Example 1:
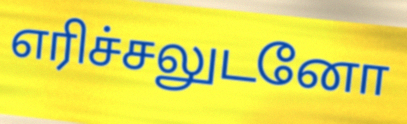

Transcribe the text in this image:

எரிச்சலுடனோ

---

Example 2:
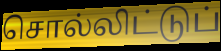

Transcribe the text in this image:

சொல்லிட்டுப்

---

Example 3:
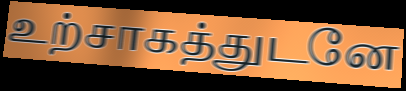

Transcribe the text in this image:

உற்சாகத்துடனே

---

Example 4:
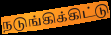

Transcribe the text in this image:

நடுங்கிக்கிட்டு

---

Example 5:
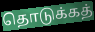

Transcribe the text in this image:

தொடுக்கத்